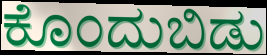
ಕೊಂದುಬಿಡು